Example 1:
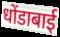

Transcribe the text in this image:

धोंडाबाई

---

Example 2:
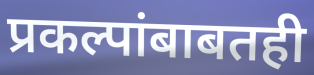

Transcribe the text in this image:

प्रकल्पांबाबतही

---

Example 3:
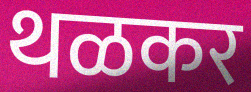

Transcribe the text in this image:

थळकर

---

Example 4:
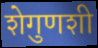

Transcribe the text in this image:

शेगुणशी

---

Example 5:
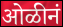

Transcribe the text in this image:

ओळीनं